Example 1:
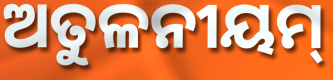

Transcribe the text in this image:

ଅତୁଳନୀୟମ୍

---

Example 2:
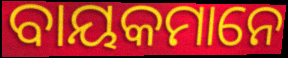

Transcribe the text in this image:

ବାୟକମାନେ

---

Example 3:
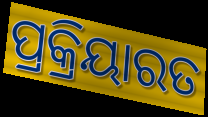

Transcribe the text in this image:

ପ୍ରକ୍ରିୟାରତ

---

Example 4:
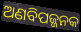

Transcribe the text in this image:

ଅଣବିପଜ୍ଜନକ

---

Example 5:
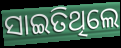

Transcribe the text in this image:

ସାଇତିଥିଲେ